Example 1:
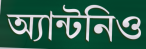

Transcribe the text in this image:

অ্যান্টনিও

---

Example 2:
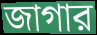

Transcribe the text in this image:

জাগার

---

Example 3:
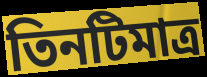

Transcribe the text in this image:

তিনটিমাত্র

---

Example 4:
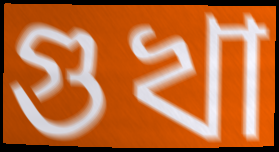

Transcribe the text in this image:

গুখা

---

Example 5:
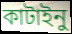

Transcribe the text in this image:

কাটাইনু